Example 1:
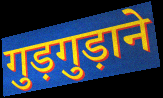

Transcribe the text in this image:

गुड़गुड़ाने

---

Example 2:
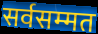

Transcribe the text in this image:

सर्वसम्मत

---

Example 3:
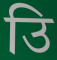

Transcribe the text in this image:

उि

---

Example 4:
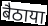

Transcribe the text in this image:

बैठाया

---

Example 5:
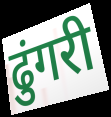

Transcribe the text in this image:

ढुंगरी